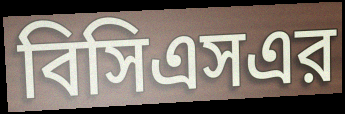
বিসিএসএর